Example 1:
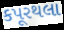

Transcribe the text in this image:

કપૂરથલા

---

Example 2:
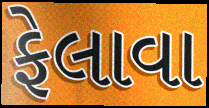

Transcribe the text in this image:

ફેલાવા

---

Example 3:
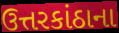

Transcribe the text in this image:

ઉત્તરકાંઠાના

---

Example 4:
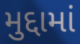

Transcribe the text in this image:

મુદ્દામાં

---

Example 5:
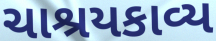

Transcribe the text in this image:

ચાશ્રયકાવ્ય